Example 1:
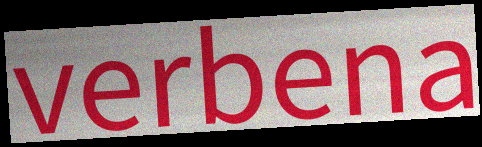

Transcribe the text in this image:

verbena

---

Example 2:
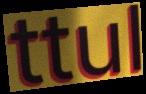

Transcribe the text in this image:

ttul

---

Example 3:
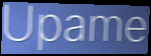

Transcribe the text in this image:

Upame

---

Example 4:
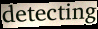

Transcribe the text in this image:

detecting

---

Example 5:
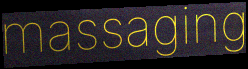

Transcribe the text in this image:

massaging